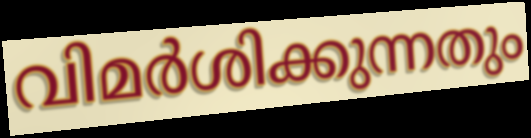
വിമർശിക്കുന്നതും